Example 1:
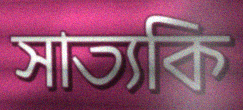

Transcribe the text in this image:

সাত্যকি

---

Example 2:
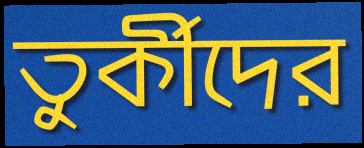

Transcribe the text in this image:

তুর্কীদের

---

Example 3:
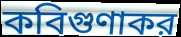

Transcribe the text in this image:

কবিগুণাকর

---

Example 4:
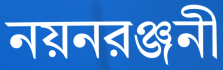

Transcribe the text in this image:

নয়নরঞ্জনী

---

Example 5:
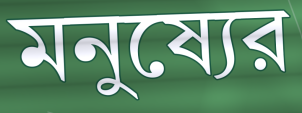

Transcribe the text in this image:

মনুষ্যের